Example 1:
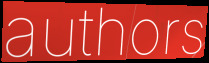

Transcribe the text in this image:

authors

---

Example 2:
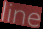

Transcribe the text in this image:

line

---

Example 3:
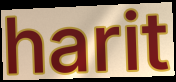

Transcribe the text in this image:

harit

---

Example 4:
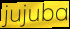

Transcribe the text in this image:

jujuba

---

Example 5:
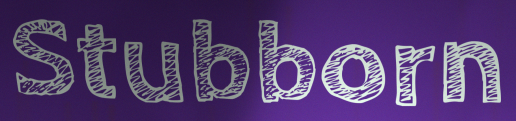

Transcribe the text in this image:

Stubborn